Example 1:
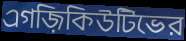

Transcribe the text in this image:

এগজ়িকিউটিভের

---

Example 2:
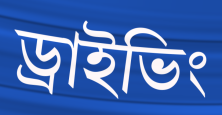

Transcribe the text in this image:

ড্রাইভিং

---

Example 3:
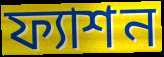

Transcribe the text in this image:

ফ্যাশন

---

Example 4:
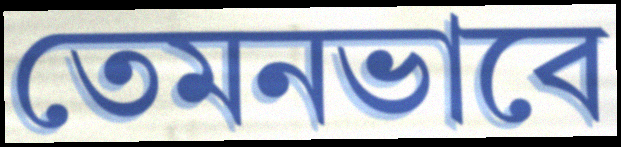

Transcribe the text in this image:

তেমনভাবে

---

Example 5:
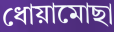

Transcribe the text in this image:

ধোয়ামোছা